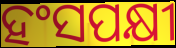
ହଂସପକ୍ଷୀ